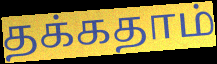
தக்கதாம்